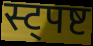
स्ट्पष्ट